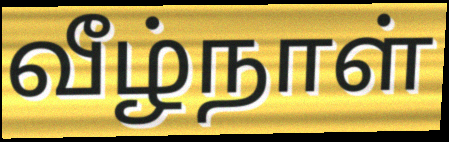
வீழ்நாள்